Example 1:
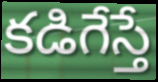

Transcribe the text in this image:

కడిగేస్తే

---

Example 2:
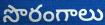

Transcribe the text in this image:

సొరంగాలు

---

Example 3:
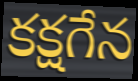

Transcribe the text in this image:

కక్షగేన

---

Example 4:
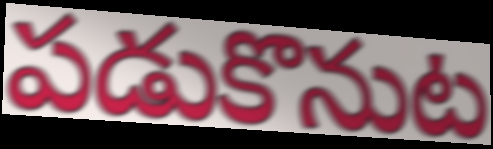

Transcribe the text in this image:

పడుకొనుట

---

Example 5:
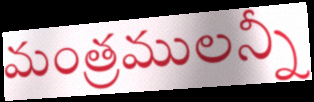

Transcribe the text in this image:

మంత్రములన్నీ